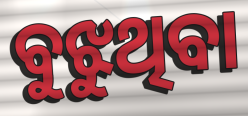
ବୁଝୁଥିବା